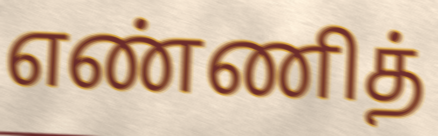
எண்ணித்